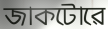
জাকটোৱে